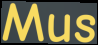
Mus